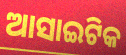
ଆସାଇଟିକ